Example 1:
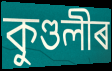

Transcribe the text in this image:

কুণ্ডলীৰ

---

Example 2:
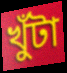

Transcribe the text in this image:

খুঁটা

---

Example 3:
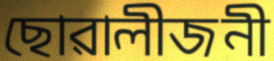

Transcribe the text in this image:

ছোৱালীজনী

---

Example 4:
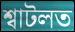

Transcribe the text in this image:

শ্বাটলত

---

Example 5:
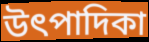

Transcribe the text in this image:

উৎপাদিকা